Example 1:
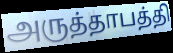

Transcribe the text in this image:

அருத்தாபத்தி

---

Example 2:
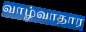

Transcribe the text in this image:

வாழ்வாதார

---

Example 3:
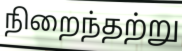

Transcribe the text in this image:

நிறைந்தற்று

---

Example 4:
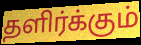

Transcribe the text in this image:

தளிர்க்கும்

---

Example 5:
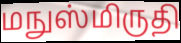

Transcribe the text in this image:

மநுஸ்மிருதி